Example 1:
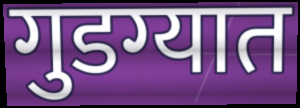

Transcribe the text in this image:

गुडग्यात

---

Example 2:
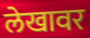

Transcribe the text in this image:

लेखावर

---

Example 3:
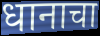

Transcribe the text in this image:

धानाचा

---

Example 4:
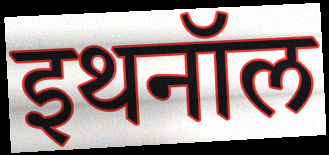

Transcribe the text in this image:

इथनॉल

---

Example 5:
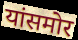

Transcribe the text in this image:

यांसमोर